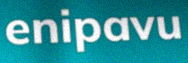
enipavu